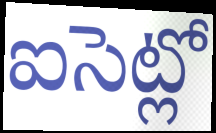
ఐసెట్లో